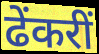
ढेंकरीं